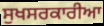
ਸੁਖਸਰਕਾਰੀਆ